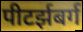
पीटर्झबर्ग